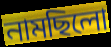
নামছিলো